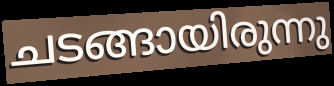
ചടങ്ങായിരുന്നു